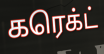
கரெக்ட்